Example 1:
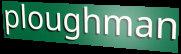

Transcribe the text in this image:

ploughman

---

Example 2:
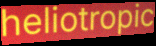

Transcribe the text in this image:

heliotropic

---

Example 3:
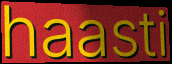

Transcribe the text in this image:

haasti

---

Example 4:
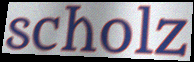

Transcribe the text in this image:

scholz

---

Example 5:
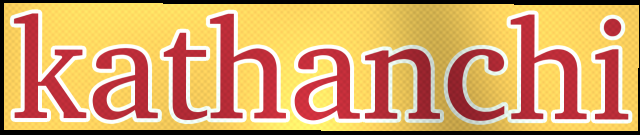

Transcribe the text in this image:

kathanchi